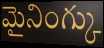
మైనింగ్కు